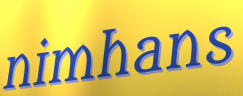
nimhans